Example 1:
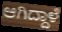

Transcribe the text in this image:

ಆಗಿದ್ದಾಳೆ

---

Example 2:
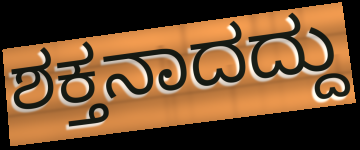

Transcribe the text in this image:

ಶಕ್ತನಾದದ್ದು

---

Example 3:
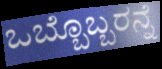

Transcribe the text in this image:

ಒಬ್ಬೊಬ್ಬರನ್ನೆ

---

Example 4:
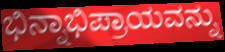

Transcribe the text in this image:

ಭಿನ್ನಾಭಿಪ್ರಾಯವನ್ನು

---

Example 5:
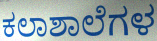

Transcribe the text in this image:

ಕಲಾಶಾಲೆಗಳ